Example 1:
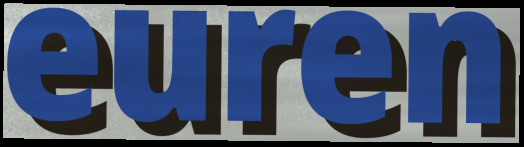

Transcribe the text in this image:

euren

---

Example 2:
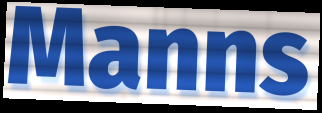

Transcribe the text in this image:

Manns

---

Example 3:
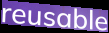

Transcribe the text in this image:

reusable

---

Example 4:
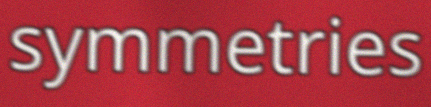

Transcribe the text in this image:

symmetries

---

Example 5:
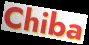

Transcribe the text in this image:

Chiba